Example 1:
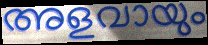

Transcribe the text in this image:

അളവായും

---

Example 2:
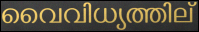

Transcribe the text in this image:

വൈവിധ്യത്തില്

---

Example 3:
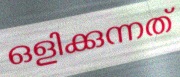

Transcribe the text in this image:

ഒളിക്കുന്നത്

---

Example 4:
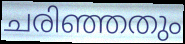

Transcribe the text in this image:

ചരിഞ്ഞതും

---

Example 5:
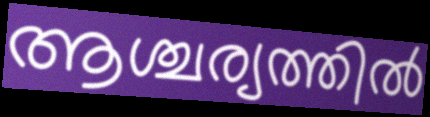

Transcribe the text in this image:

ആശ്ചര്യത്തിൽ